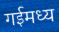
गईमध्य